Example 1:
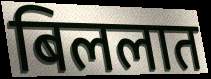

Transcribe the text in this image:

बिललात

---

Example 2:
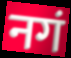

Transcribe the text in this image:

नगं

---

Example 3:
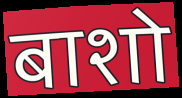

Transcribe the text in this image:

बाशो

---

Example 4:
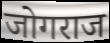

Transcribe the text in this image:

जोगराज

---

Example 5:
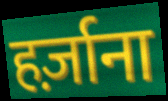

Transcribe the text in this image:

हर्ज़ाना